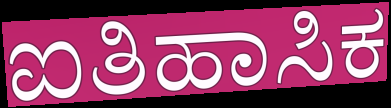
ಐತಿಹಾಸಿಕ